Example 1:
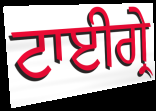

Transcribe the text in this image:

ਟਾਈਗ੍ਰੇ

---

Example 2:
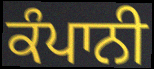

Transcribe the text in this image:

ਕੰਪਾਨੀ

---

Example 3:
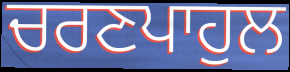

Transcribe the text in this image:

ਚਰਣਪਾਹੁਲ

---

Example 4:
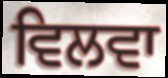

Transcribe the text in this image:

ਵਿਲਵਾ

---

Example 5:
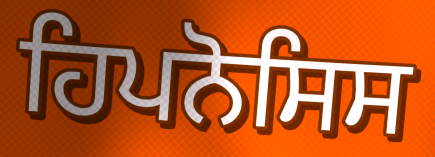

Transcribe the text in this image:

ਹਿਪਨੋਸਿਸ